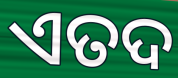
ଏତଦ